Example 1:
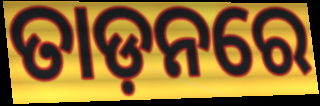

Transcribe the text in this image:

ତାଡ଼ନରେ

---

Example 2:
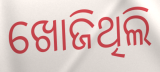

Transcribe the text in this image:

ଖୋଜିଥିଲି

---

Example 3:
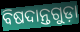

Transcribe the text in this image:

ବିଷଦାନ୍ତଗୁଡ଼ା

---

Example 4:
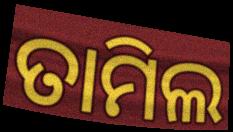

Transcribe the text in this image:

ତାମିଲ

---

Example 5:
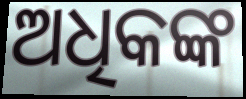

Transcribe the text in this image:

ଅଧିକଙ୍କ